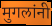
मुगलांनी